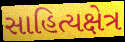
સાહિત્યક્ષેત્ર